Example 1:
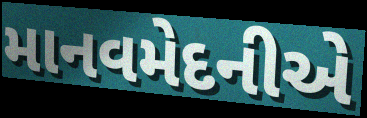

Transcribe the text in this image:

માનવમેદનીએ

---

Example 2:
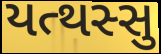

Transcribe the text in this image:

યત્થસ્સુ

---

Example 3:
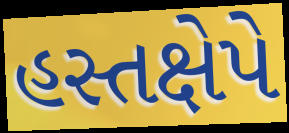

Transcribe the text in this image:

હસ્તક્ષેપે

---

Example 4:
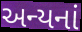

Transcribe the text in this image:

અન્યનાં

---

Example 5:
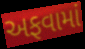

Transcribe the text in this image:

અફવામાં